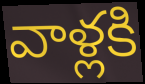
వాళ్లకి